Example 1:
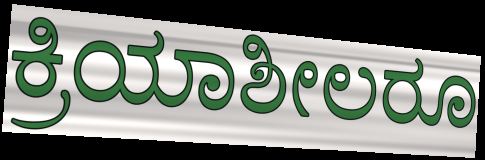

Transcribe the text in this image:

ಕ್ರಿಯಾಶೀಲರೂ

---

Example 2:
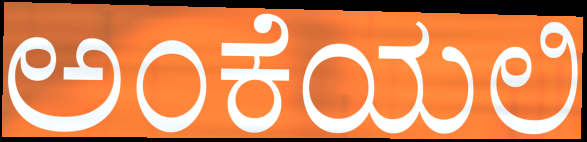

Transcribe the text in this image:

ಅಂಕೆಯಲಿ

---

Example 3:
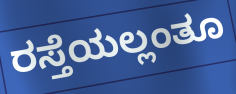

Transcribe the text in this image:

ರಸ್ತೆಯಲ್ಲಂತೂ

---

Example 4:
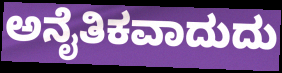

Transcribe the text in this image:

ಅನೈತಿಕವಾದುದು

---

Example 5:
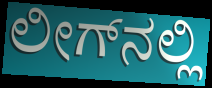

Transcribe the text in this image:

ಲೀಗ್‌ನಲ್ಲಿ